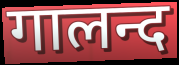
गालन्द